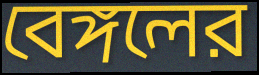
বেঙ্গলের